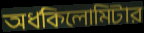
অর্ধকিলোমিটার